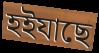
হইযাছে